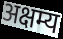
अक्षम्‍य